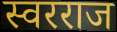
स्वरराज